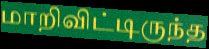
மாறிவிட்டிருந்த